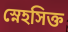
স্নেহসিক্ত